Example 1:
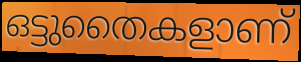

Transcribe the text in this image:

ഒട്ടുതൈകളാണ്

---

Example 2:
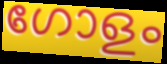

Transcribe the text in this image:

ഗോളം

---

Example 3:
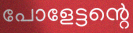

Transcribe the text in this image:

പോളേട്ടന്റെ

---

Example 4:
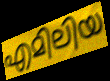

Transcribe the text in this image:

എമിലിയ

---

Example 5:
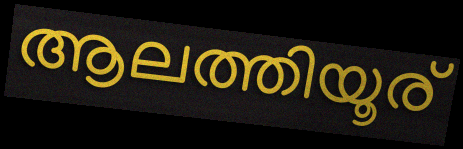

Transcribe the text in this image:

ആലത്തിയൂര്